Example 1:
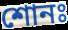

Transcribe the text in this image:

শোনঃ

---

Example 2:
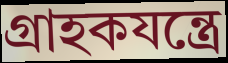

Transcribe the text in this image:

গ্রাহকযন্ত্রে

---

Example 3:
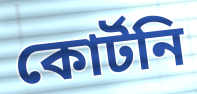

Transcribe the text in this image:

কোর্টনি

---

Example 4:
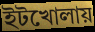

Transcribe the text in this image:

ইটখোলায়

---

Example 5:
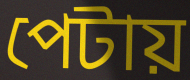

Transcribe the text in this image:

পেটায়